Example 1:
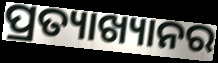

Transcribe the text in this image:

ପ୍ରତ୍ୟାଖ୍ୟାନର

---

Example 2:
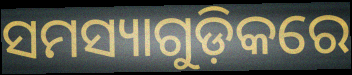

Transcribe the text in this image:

ସମସ୍ୟାଗୁଡ଼ିକରେ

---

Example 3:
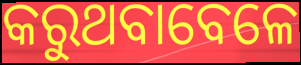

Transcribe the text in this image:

କରୁଥବାବେଳେ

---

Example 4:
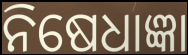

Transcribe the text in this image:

ନିଷେଧାଜ୍ଞା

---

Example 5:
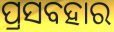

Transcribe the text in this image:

ପ୍ରସବହାର